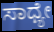
ಸಾಧ್ಯೇ